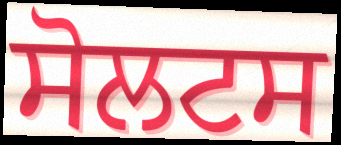
ਸੋਲਟਸ